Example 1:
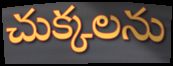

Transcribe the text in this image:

చుక్కలను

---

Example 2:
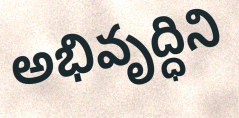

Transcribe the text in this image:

అభివృద్ధిని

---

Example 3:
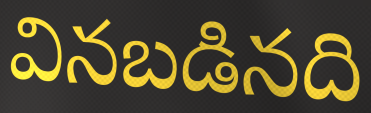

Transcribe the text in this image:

వినబడినది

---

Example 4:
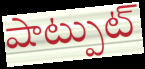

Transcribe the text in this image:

షాట్పుట్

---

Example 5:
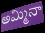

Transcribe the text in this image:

అమ్మినా